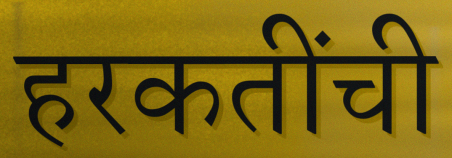
हरकतींची